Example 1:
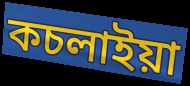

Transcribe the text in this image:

কচলাইয়া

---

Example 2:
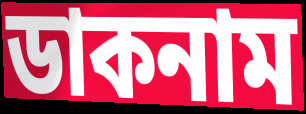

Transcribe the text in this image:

ডাকনাম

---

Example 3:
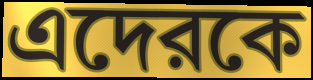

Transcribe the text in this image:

এদেরকে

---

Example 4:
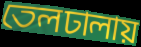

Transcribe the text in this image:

তেলঢালায়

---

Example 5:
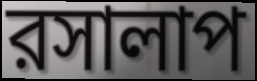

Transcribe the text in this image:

রসালাপ